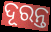
ଦୂରନ୍ତ